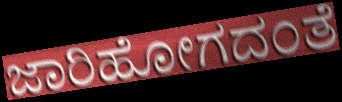
ಜಾರಿಹೋಗದಂತೆ